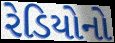
રેડિયોનો